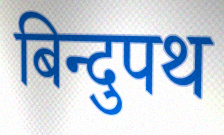
बिन्दुपथ